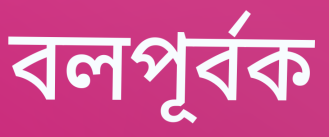
বলপূর্বক